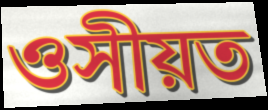
ওসীয়ত